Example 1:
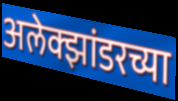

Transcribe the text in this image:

अलेक्झांडरच्या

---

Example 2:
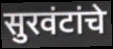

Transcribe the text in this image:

सुरवंटांचे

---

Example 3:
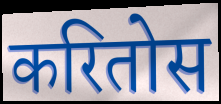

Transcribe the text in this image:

करितोस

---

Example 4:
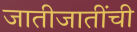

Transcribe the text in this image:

जातीजातींची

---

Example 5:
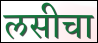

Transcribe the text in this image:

लसीचा